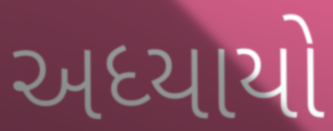
અધ્યાયો